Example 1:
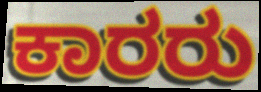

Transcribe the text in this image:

ಕಾರರು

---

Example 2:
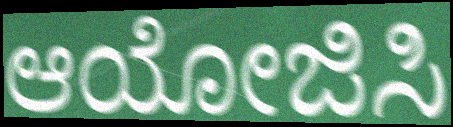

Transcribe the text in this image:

ಆಯೋಜಿಸಿ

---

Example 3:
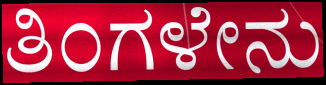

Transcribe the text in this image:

ತಿಂಗಳೇನು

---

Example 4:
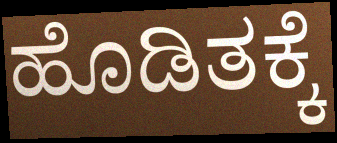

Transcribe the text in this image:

ಹೊಡಿತಕ್ಕೆ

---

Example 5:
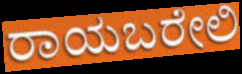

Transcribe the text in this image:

ರಾಯಬರೇಲಿ